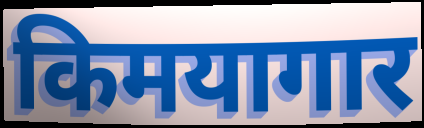
किमयागार